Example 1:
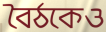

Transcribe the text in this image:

বৈঠকেও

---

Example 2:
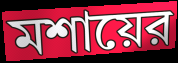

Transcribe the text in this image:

মশায়ের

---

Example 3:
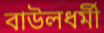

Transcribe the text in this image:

বাউলধর্মী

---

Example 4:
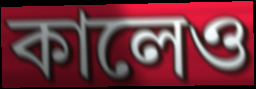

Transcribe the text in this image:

কালেও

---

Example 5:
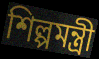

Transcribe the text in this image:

শিল্পমন্ত্রী